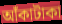
আঁকাটাকা